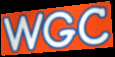
WGC